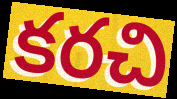
కరచి